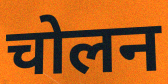
चोलन